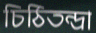
চিঠিতন্দ্রা